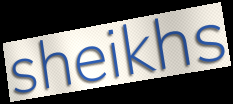
sheikhs